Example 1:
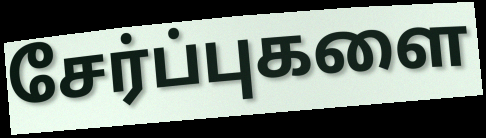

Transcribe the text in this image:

சேர்ப்புகளை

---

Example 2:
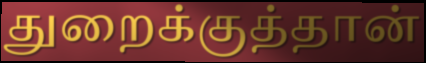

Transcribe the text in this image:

துறைக்குத்தான்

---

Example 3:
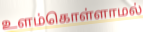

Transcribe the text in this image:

உளம்கொள்ளாமல்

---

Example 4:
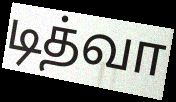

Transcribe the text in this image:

டித்வா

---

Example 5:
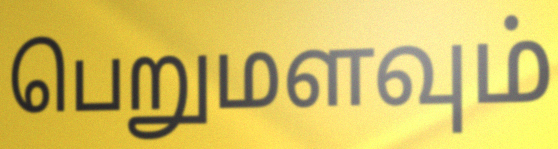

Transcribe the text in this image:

பெறுமளவும்